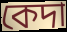
কেদা